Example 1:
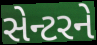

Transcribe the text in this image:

સેન્ટરને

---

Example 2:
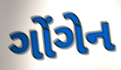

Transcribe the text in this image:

ગોંગેન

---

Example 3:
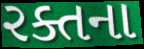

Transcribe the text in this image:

રક્તના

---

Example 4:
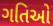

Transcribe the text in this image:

ગતિઓ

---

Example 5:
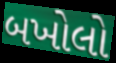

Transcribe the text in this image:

બખોલો